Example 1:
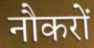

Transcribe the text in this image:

नौकरों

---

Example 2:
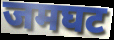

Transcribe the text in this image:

जमघट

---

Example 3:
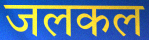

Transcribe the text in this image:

जलकल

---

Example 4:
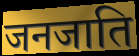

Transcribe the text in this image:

जनजाति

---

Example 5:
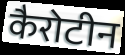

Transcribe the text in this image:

कैरोटीन